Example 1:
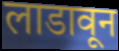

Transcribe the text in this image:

लाडावून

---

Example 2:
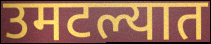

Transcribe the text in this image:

उमटल्यात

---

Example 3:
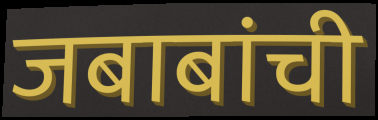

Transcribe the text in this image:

जबाबांची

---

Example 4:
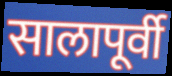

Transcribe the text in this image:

सालापूर्वी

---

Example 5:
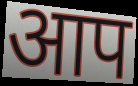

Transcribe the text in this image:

आप